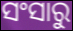
ସଂସାରୁ